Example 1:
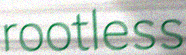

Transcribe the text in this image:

rootless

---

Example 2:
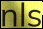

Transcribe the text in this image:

nls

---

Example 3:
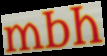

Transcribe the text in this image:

mbh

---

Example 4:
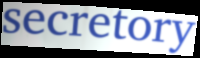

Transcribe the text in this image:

secretory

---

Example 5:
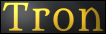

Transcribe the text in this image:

Tron